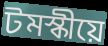
টমস্কীয়ে